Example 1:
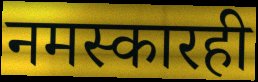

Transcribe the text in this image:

नमस्कारही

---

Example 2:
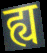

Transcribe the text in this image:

ह्य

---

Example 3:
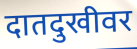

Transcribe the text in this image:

दातदुखीवर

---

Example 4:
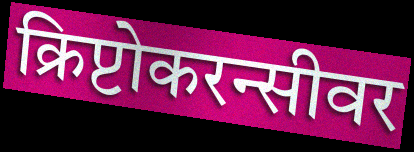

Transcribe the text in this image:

क्रिप्टोकरन्सीवर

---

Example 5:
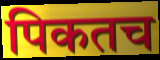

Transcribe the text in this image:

पिकतच